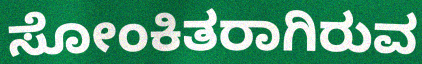
ಸೋಂಕಿತರಾಗಿರುವ